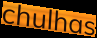
chulhas